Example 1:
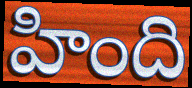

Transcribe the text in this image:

హింది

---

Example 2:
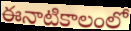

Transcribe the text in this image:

ఈనాటికాలంలో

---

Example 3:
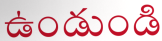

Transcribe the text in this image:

ఉండుండి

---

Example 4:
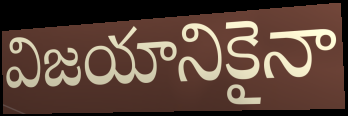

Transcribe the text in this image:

విజయానికైనా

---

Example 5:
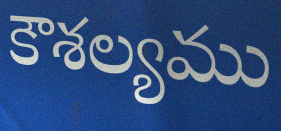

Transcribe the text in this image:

కౌశల్యము